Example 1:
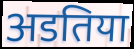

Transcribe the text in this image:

अडतिया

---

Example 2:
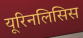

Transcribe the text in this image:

यूरिनलिसिस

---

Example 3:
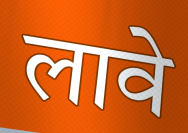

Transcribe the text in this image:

लावे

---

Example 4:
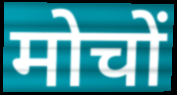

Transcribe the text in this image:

मोचों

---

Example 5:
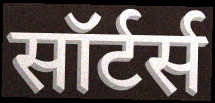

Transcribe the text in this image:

सॉर्टर्स